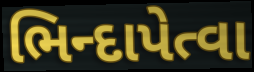
ભિન્દાપેત્વા